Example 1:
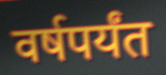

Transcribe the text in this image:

वर्षपर्यंत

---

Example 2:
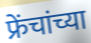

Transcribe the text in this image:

फ्रेंचांच्या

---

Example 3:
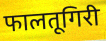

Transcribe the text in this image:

फालतूगिरी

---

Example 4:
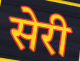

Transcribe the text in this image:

सेरी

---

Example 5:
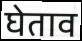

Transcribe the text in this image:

घेताव